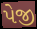
પેજી